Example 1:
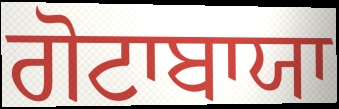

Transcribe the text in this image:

ਗੋਟਾਬਾਯਾ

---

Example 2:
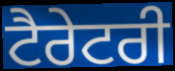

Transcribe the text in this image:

ਟੈਰੇਟਰੀ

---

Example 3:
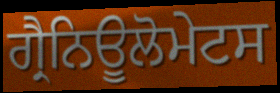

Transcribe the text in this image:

ਗ੍ਰੈਨਿਊਲੋਮੇਟਸ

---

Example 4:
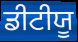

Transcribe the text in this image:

ਡੀਟੀਯੂ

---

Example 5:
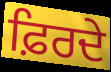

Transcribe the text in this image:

ਫ਼ਿਰਦੇ